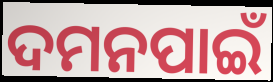
ଦମନପାଇଁ